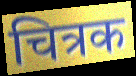
चित्रक